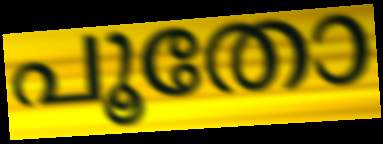
പൂതോ